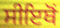
ਸੀਇਥੋਂ